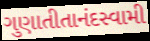
ગુણાતીતાનંદસ્વામી